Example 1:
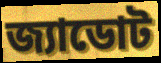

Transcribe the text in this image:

জ্যাডোট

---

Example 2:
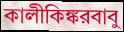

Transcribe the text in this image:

কালীকিঙ্করবাবু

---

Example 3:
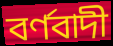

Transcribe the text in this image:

বর্ণবাদী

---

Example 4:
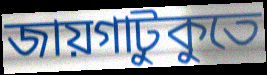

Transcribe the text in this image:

জায়গাটুকুতে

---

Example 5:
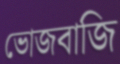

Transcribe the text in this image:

ভোজবাজি